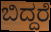
ಬಿದ್ದರೆ